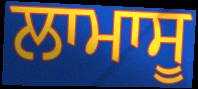
ਲਾਮਾਸੂ